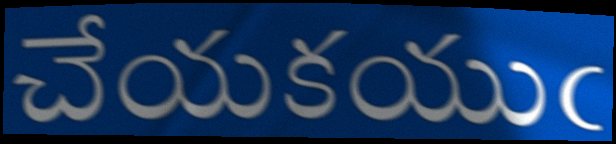
చేయకయుఁ